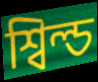
শ্বিল্ড